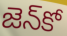
జెన్‌కో